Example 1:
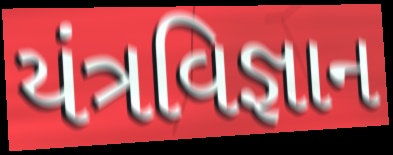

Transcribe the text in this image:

યંત્રવિજ્ઞાન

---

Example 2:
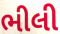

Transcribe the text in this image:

ભીલી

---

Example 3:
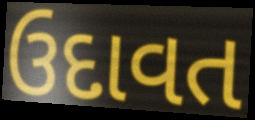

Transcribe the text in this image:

ઉદાવત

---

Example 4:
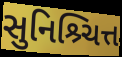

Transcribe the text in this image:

સુનિશ્ર્ચિત્ત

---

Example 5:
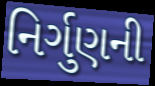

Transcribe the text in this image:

નિર્ગુણની